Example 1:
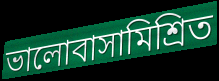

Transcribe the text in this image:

ভালোবাসামিশ্রিত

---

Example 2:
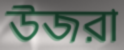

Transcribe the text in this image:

উজরা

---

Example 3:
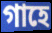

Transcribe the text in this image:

গাহে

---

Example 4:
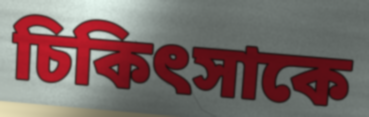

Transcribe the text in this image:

চিকিৎসাকে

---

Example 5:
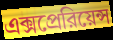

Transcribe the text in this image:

এক্সপ্রেরিয়েন্স